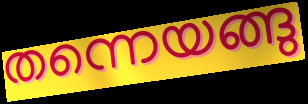
തന്നെയങ്ങു